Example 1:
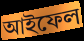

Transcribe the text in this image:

আইফেল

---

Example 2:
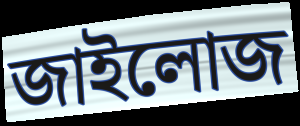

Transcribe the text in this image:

জাইলোজ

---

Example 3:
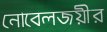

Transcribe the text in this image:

নোবেলজয়ীর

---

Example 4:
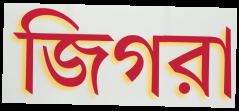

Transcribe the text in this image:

জিগরা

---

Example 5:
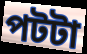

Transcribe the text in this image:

পটটা